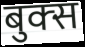
बुक्‍स